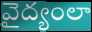
వైద్యంలా